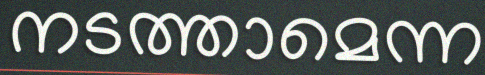
നടത്താമെന്ന